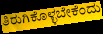
ತಿರುಗಿಕೊಳ್ಳಬೇಕೆಂದು